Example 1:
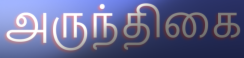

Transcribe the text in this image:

அருந்திகை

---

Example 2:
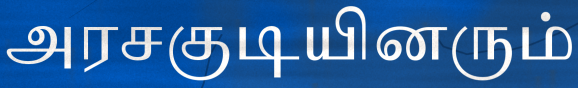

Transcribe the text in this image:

அரசகுடியினரும்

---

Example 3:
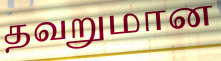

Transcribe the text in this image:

தவறுமான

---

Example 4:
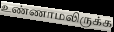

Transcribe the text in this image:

உண்ணாமலிருக்க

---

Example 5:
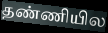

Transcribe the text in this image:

தண்ணியில